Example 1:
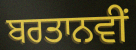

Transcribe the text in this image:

ਬਰਤਾਨਵੀਂ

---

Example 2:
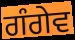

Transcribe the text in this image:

ਗੰਗੇਵ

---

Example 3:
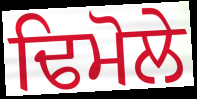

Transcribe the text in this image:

ਢਿਮੋਲੇ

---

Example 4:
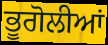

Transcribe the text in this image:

ਭੂਗੋਲੀਆਂ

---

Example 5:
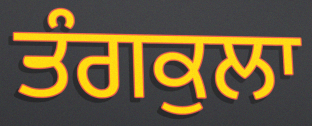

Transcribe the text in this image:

ਤੰਗਕੁਲਾ